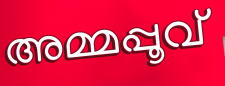
അമ്മപ്പൂവ്